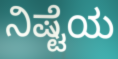
ನಿಷ್ಟೆಯ